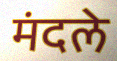
मंदले